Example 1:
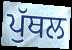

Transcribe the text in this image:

ਪੁੱਥਲ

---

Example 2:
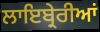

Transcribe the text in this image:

ਲਾਇਬ੍ਰੇਰੀਆਂ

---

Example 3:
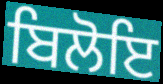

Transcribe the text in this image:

ਬਿਲੋਇ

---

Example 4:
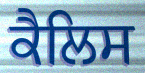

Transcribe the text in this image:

ਕੈਲਿਸ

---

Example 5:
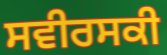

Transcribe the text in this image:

ਸਵੀਰਸਕੀ